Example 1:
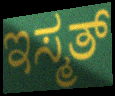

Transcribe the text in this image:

ಇಸ್ಮತ್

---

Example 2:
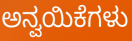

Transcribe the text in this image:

ಅನ್ವಯಿಕೆಗಳು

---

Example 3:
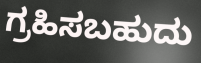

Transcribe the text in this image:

ಗ್ರಹಿಸಬಹುದು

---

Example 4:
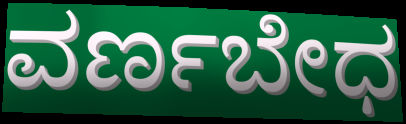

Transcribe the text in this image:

ವರ್ಣಬೇಧ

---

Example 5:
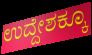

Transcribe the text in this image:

ಉದ್ದೇಶಕ್ಕೂ